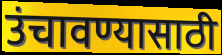
उंचावण्यासाठी